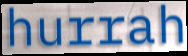
hurrah